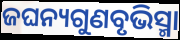
ଜଘନ୍ୟଗୁଣବୃଭିସ୍ମା